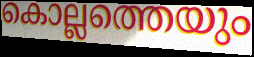
കൊല്ലത്തെയും